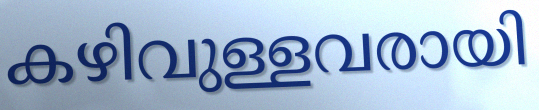
കഴിവുള്ളവരായി